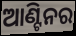
ଆଣ୍ଟିନର